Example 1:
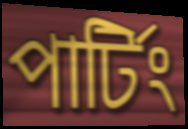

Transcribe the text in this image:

পার্টিং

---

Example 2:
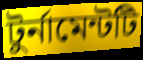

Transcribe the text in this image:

টুর্নামেন্টটি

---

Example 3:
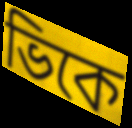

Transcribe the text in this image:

ভিকে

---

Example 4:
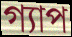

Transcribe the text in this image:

গ্যাপ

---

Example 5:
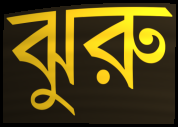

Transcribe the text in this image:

ঝুরু